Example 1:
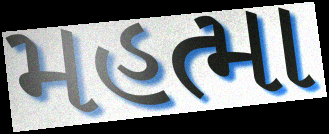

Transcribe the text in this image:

મહત્મા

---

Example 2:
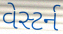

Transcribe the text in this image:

વેસ્ટર્ન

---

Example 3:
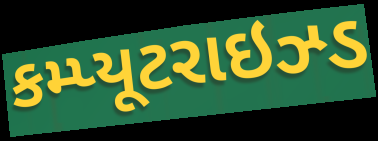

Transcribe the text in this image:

કમ્પ્યૂટરાઇઝ્ડ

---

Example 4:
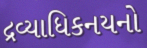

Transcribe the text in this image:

દ્રવ્યાધિકનયનો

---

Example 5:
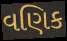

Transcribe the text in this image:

વણિક